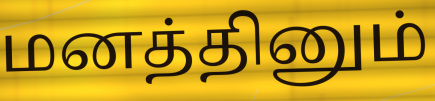
மனத்தினும்